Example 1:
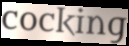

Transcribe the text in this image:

cocking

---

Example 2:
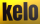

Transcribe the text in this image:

kelo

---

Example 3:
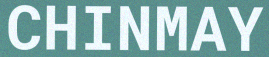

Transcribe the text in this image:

CHINMAY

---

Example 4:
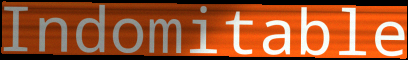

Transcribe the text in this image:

Indomitable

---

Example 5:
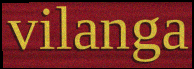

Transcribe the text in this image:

vilanga